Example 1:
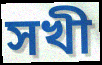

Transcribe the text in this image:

সখী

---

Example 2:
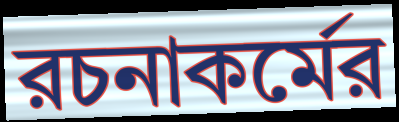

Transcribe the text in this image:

রচনাকর্মের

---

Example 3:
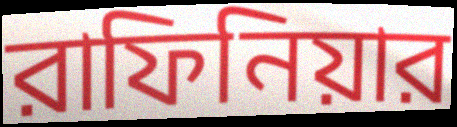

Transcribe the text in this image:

রাফিনিয়ার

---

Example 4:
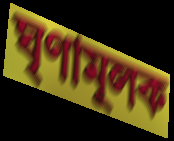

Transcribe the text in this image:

ঘৃণামূলক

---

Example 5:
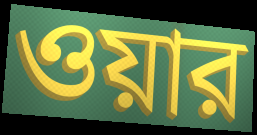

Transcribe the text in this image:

ওয়ার